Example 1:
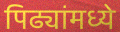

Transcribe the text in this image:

पिढ्यांमध्ये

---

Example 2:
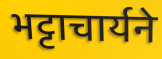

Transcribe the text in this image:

भट्टाचार्यने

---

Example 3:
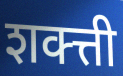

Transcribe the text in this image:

शक्त्ती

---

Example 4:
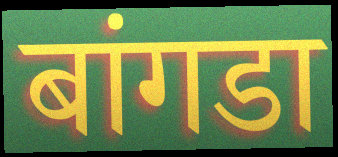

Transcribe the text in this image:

बांगडा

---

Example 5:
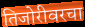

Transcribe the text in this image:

तिजोरीवरचा